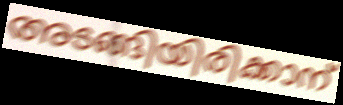
അടങ്ങിയിരിക്കാന്